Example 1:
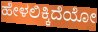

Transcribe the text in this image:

ಹೇಳಲಿಕ್ಕಿದೆಯೋ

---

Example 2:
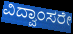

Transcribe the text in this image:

ವಿದ್ವಾಂಸರೇ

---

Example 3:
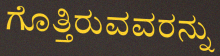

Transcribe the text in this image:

ಗೊತ್ತಿರುವವರನ್ನು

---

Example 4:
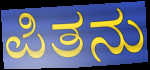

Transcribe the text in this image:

ಪಿತನು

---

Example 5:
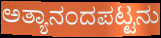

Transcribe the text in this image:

ಅತ್ಯಾನಂದಪಟ್ಟನು